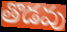
తొడవు